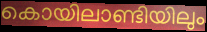
കൊയിലാണ്ടിയിലും